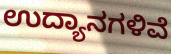
ಉದ್ಯಾನಗಳಿವೆ